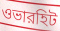
ওভারহিট